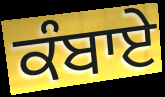
ਕੰਬਾਏ